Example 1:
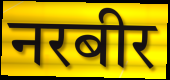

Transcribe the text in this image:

नरबीर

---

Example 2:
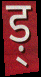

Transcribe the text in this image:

ड़्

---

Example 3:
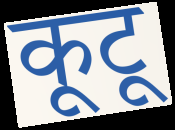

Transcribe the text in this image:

कूटू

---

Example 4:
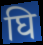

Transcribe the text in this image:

घि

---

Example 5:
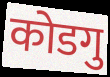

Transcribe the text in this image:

कोडगु